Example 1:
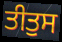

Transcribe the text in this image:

ਤੀਤੁਸ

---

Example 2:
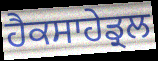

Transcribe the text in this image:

ਹੈਕਸਾਹੇਡ੍ਰਲ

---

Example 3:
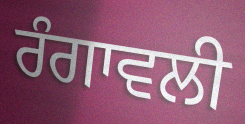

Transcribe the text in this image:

ਰੰਗਾਵਲੀ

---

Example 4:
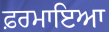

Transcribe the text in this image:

ਫ਼ਰਮਾਇਆ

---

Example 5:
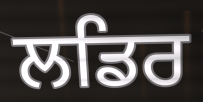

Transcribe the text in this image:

ਲਡਿਰ